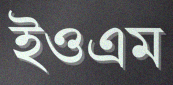
ইওএম